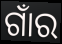
ଗାଁର